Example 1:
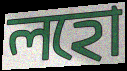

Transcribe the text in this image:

লহো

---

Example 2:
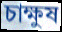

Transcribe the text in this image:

চাক্ষুষ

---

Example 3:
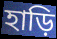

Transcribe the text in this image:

হাড়ি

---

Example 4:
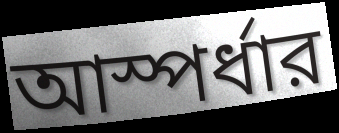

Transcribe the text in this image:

আস্পর্ধার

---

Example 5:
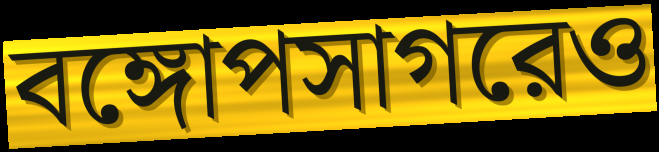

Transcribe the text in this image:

বঙ্গোপসাগরেও